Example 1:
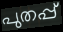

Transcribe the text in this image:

പുതപ്പ്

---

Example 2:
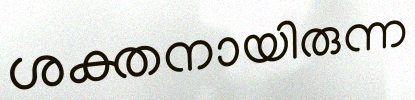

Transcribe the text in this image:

ശക്തനായിരുന്ന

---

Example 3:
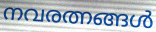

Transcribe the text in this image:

നവരത്നങ്ങൾ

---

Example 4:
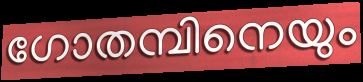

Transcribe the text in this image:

ഗോതമ്പിനെയും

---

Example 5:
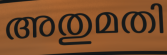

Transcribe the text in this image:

അതുമതി